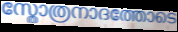
സ്തോത്രനാദത്തോടെ